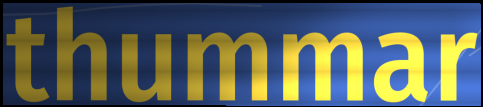
thummar